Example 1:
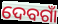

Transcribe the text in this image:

ଦେବଗାଁ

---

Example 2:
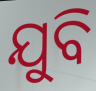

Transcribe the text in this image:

ଯୁବି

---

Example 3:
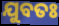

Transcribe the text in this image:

ଯୁବତଃ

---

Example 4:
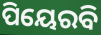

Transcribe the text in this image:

ପିୟେରବି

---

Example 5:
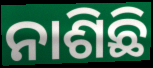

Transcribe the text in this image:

ନାଶିଛି